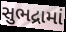
સુભદ્રામાં